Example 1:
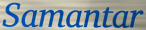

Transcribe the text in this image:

Samantar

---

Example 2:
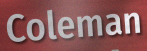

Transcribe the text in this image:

Coleman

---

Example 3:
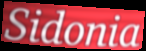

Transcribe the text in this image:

Sidonia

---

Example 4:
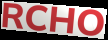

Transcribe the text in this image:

RCHO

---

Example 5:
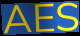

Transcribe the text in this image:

AES